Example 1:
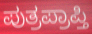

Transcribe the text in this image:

ಪುತ್ರಪ್ರಾಪ್ತಿ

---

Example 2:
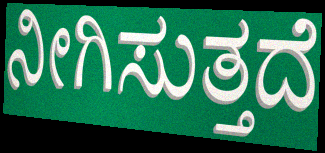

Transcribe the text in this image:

ನೀಗಿಸುತ್ತದೆ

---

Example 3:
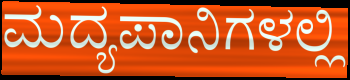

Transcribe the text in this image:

ಮದ್ಯಪಾನಿಗಳಲ್ಲಿ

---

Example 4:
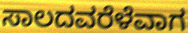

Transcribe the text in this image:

ಸಾಲದವರೆಳೆವಾಗ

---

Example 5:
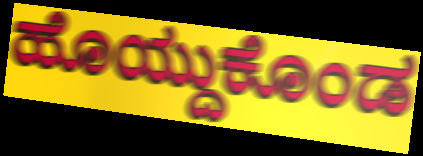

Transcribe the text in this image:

ಹೊಯ್ದುಕೊಂಡ